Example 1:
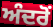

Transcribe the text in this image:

ਅੰਦਰੋਂ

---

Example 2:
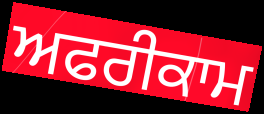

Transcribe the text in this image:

ਅਫਰੀਕਾਮ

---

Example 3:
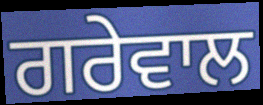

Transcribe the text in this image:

ਗਰੇਵਾਲ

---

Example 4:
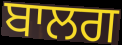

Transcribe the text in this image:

ਬਾਲਗ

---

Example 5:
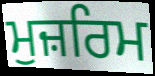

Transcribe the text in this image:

ਮੁਜ਼ਰਿਮ